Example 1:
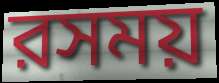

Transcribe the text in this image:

রসময়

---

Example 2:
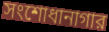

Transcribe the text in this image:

সংশোধানাগার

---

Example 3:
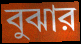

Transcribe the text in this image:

বুঝার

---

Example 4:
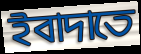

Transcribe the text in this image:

ইবাদাতে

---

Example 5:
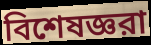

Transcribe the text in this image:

বিশেষজ্ঞরা